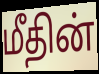
மீதின்